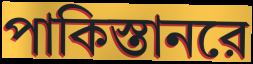
পাকিস্তানরে